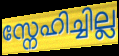
സ്നേഹിച്ചില്ല